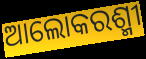
ଆଲୋକରଶ୍ମୀ